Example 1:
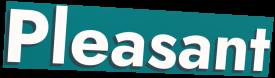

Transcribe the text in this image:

Pleasant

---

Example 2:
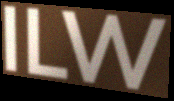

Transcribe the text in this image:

ILW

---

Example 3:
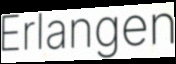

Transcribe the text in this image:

Erlangen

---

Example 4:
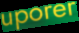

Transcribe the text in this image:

uporer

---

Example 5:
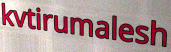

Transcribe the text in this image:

kvtirumalesh